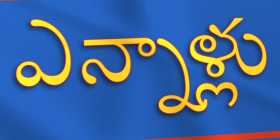
ఎన్నాళ్లు